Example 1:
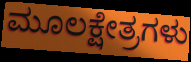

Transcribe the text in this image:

ಮೂಲಕ್ಷೇತ್ರಗಳು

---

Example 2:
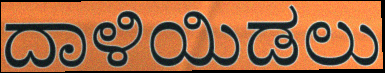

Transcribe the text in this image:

ದಾಳಿಯಿಡಲು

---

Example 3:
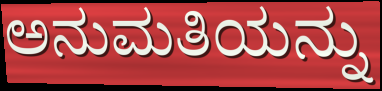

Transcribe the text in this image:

ಅನುಮತಿಯನ್ನು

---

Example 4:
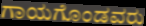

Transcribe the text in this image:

ಗಾಯಗೊಂಡವರು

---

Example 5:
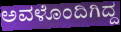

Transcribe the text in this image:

ಅವಳೊಂದಿಗಿದ್ದ